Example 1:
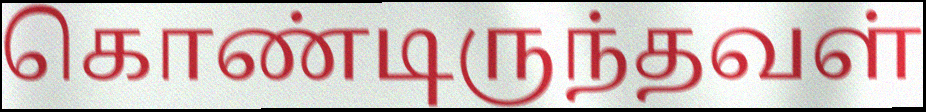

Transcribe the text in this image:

கொண்டிருந்தவள்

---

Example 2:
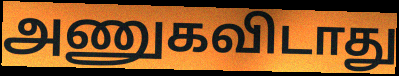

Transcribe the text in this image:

அணுகவிடாது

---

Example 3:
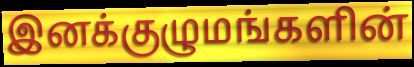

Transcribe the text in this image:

இனக்குழுமங்களின்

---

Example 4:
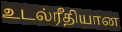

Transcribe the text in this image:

உடல்ரீதியான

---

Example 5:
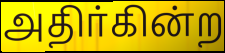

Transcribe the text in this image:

அதிர்கின்ற